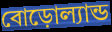
বোড়োল্যান্ড